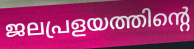
ജലപ്രളയത്തിന്റെ